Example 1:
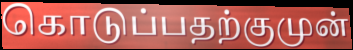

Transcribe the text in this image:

கொடுப்பதற்குமுன்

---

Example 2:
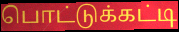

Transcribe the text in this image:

பொட்டுக்கட்டி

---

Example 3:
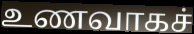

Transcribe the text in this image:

உணவாகச்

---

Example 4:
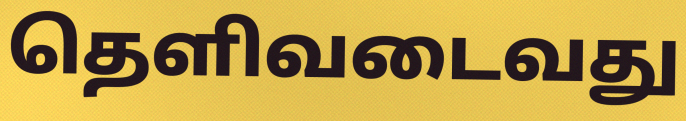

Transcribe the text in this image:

தெளிவடைவது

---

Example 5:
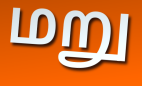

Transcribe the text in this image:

மறு